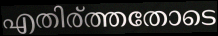
എതിര്ത്തതോടെ